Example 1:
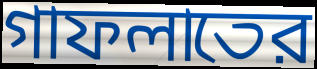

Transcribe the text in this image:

গাফলাতের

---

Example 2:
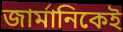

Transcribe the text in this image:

জার্মানিকেই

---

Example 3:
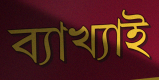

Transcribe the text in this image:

ব্যাখ্যাই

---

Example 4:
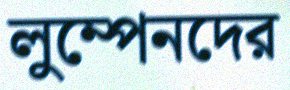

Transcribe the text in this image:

লুম্পেনদের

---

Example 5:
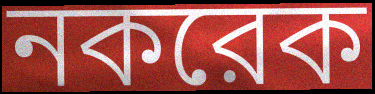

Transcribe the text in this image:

নকরেক